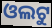
ଓଲଟୁ